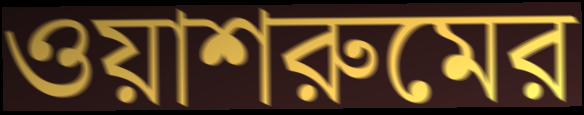
ওয়াশরুমের